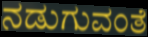
ನಡುಗುವಂತೆ